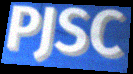
PJSC